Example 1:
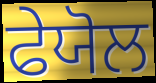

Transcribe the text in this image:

ਫੇਯੋਲ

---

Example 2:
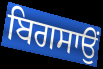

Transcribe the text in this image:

ਬਿਗਸਾਉਂ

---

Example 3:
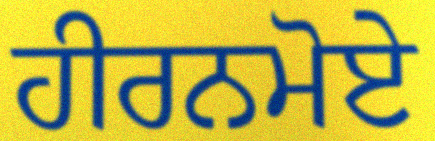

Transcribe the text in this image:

ਹੀਰਨਮੋਏ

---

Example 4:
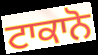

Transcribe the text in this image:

ਟਾਕਾਨੋ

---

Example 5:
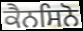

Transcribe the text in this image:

ਕੈਨਸਿਨੋ